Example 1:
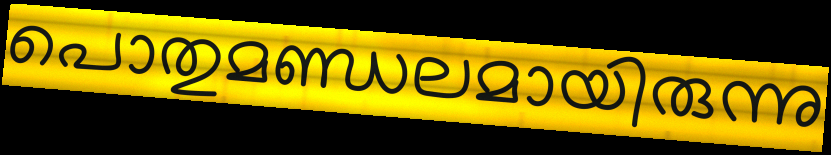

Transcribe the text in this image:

പൊതുമണ്ഡലമായിരുന്നു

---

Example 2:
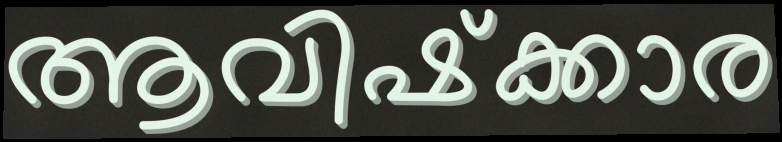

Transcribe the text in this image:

ആവിഷ്‌ക്കാര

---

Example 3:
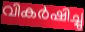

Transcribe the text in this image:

വികർഷിച്ചു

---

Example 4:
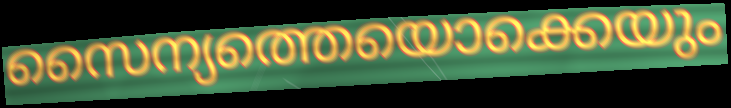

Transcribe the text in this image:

സൈന്യത്തെയൊക്കെയും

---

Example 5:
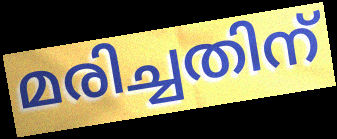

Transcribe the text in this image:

മരിച്ചതിന്